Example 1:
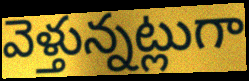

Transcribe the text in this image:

వెళ్తున్నట్లుగా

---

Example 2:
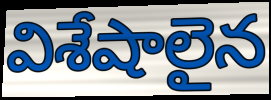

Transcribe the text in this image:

విశేషాలైన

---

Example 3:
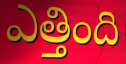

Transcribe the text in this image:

ఎత్తింది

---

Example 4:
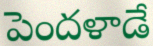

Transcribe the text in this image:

పెందళాడే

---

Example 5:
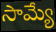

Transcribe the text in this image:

సామ్యే